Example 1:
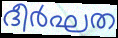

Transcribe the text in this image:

ദീർഘത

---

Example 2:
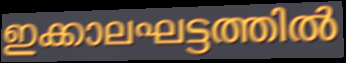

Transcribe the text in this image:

ഇക്കാലഘട്ടത്തിൽ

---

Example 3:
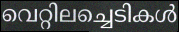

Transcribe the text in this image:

വെറ്റിലച്ചെടികൾ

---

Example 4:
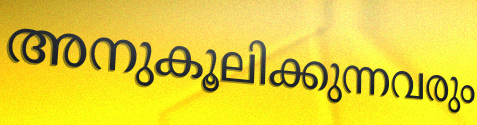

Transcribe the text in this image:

അനുകൂലിക്കുന്നവരും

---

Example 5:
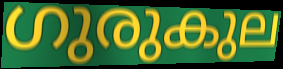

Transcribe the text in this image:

ഗുരുകുല